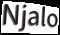
Njalo